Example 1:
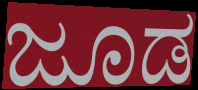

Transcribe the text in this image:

ಜೂಡ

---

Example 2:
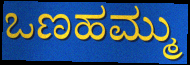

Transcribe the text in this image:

ಒಣಹಮ್ಮು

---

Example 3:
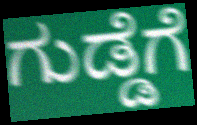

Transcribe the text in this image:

ಗುಡ್ಡೆಗೆ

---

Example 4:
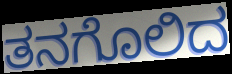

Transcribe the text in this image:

ತನಗೊಲಿದ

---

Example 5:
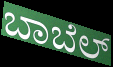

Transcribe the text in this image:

ಬಾಬೆಲ್